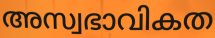
അസ്വഭാവികത